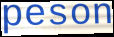
peson